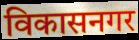
विकासनगर